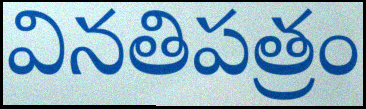
వినతిపత్రం